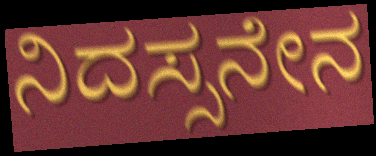
ನಿದಸ್ಸನೇನ